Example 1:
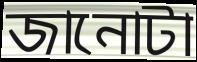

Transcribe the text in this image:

জানোটা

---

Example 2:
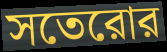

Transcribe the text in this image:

সতেরোর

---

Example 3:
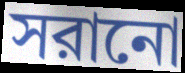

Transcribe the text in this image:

সরানো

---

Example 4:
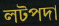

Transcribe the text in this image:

লটপদা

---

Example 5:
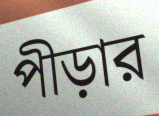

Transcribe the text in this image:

পীড়ার